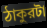
ঠাকুরটা